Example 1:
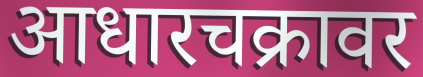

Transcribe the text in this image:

आधारचक्रावर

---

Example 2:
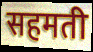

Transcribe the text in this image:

सहमती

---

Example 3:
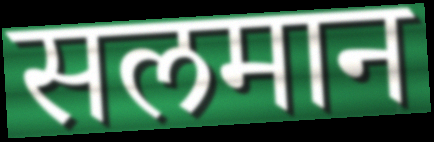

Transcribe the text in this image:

सलमान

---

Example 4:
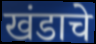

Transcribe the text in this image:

खंडाचे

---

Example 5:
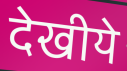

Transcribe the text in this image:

देखीये